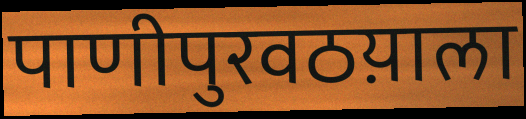
पाणीपुरवठय़ाला